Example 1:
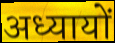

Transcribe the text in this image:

अध्यायों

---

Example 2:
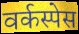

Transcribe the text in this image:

वर्कस्पेस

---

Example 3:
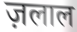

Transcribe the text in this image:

ज़लाल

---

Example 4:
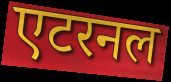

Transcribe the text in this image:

एटरनल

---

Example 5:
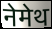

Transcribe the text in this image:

नेमेथ